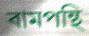
বামপন্থি